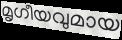
മൃഗീയവുമായ